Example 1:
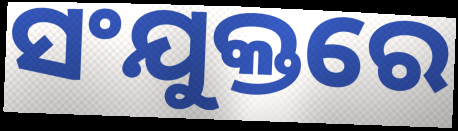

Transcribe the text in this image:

ସଂଯୁକ୍ତରେ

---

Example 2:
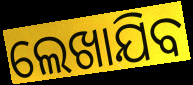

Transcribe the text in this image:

ଲେଖାଯିବ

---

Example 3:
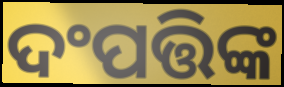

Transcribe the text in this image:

ଦଂପତ୍ତିଙ୍କ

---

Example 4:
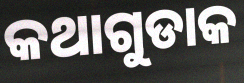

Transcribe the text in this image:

କଥାଗୁଡାକ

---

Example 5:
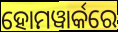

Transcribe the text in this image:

ହୋମୱାର୍କରେ